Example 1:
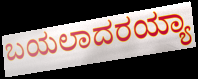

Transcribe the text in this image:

ಬಯಲಾದರಯ್ಯಾ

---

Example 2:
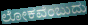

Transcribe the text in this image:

ಲೋಕವೆಂಬುದು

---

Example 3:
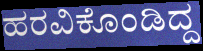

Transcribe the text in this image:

ಹರವಿಕೊಂಡಿದ್ದ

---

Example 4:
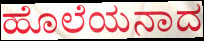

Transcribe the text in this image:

ಹೊಲೆಯನಾದ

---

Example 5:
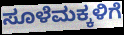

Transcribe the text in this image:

ಸೂಳೆಮಕ್ಕಳಿಗೆ